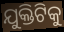
ଯୁକ୍ତିଟିକୁ